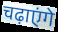
चढ़ाएंगे